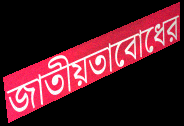
জাতীয়তাবোধের